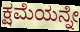
ಕ್ಷಮೆಯನ್ನೇ